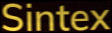
Sintex